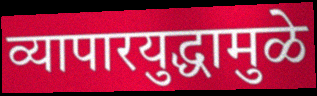
व्यापारयुद्धामुळे